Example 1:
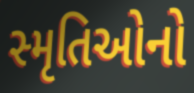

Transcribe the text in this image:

સ્મૃતિઓનો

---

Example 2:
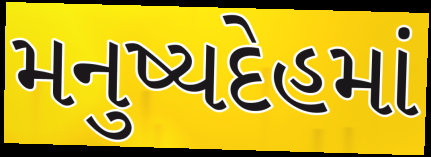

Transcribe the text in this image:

મનુષ્યદેહમાં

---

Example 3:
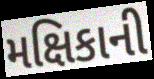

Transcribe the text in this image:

મક્ષિકાની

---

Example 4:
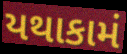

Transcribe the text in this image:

યથાકામં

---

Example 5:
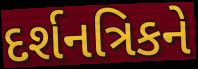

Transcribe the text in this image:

દર્શનત્રિકને